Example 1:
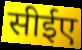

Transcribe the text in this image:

सीईए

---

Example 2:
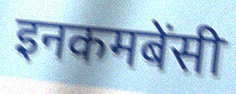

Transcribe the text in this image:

इनकमबेंसी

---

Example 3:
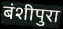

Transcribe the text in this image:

बंशीपुरा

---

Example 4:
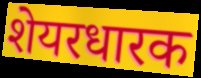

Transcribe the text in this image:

शेयरधारक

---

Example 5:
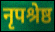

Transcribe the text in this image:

नृपश्रेष्ठ